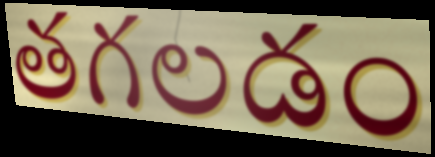
తగలడం